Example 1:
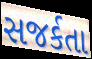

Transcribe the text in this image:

સજર્કતા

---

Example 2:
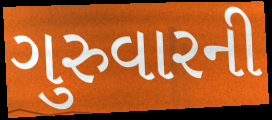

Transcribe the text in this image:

ગુરુવારની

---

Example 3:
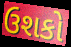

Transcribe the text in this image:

ઉશકો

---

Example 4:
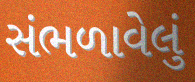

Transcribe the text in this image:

સંભળાવેલું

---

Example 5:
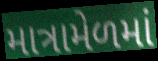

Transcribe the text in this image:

માત્રામેળમાં